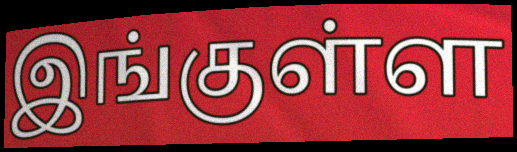
இங்குள்ள